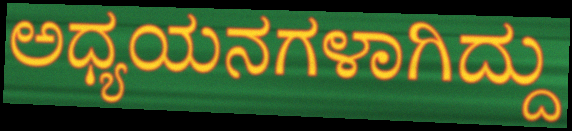
ಅಧ್ಯಯನಗಳಾಗಿದ್ದು